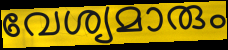
വേശ്യമാരും